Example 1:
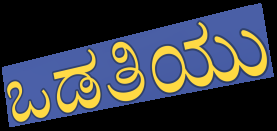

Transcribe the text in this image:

ಒಡತಿಯು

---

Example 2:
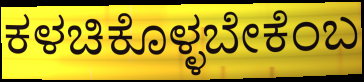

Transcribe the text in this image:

ಕಳಚಿಕೊಳ್ಳಬೇಕೆಂಬ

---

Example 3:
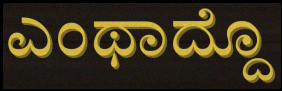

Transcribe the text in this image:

ಎಂಥಾದ್ದೊ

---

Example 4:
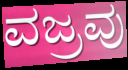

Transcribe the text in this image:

ವಜ್ರವು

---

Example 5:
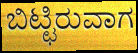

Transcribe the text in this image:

ಬಿಟ್ಟಿರುವಾಗ